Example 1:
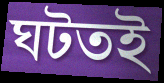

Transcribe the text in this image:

ঘটতই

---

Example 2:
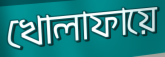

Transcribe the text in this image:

খোলাফায়ে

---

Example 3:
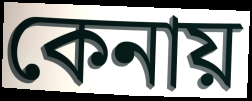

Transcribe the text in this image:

কেনায়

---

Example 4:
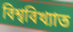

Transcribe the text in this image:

বিশ্ববিখ্যাত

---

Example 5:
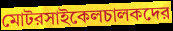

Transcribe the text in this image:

মোটরসাইকেলচালকদের